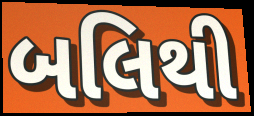
બલિથી